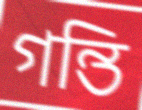
গন্তি